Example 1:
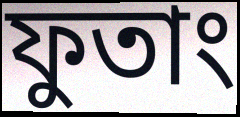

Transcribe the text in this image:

ফুতাং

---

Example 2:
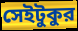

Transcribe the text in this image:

সেইটুকুর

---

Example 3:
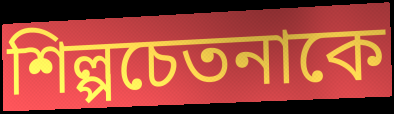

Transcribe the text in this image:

শিল্পচেতনাকে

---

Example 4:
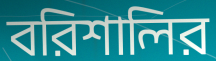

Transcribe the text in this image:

বরিশালির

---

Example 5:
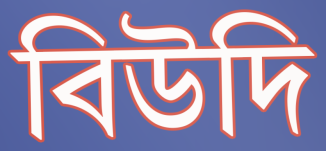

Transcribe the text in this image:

বিউদি